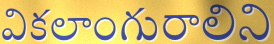
వికలాంగురాలిని